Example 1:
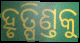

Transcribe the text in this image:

ହୃତ୍ପିଣ୍ତକୁ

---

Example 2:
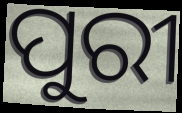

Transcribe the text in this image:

ପୁରୀ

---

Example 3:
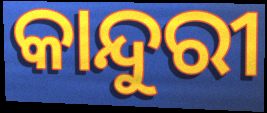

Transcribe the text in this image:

କାନ୍ଦୁରୀ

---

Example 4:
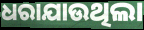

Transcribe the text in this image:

ଧରାଯାଉଥିଲା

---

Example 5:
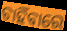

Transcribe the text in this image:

ଚାହିଁବାରେ